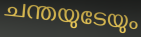
ചന്തയുടേയും